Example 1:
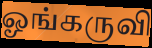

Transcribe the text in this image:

ஓங்கருவி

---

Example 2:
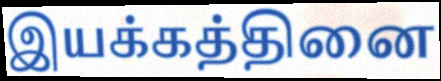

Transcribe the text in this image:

இயக்கத்தினை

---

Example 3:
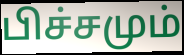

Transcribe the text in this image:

பிச்சமும்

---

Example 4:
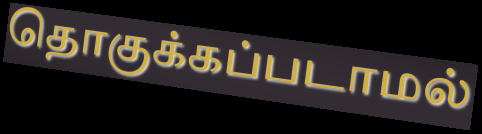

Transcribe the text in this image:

தொகுக்கப்படாமல்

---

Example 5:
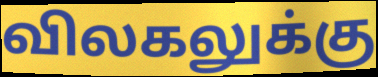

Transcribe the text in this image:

விலகலுக்கு